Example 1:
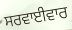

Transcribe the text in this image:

ਸਰਵਾਈਵਾਰ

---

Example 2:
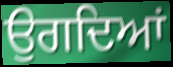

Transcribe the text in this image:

ਉਗਦਿਆਂ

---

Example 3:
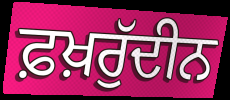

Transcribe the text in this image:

ਫ਼ਖ਼ਰੁੱਦੀਨ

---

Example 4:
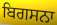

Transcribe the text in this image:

ਬਿਗਸਨਾ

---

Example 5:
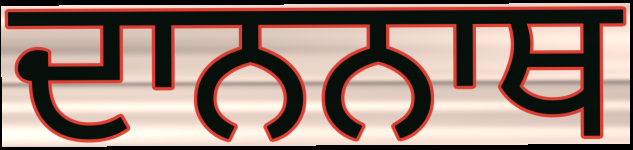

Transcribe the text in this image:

ਦਾਨਨਾਥ